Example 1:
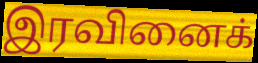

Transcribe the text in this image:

இரவினைக்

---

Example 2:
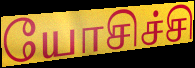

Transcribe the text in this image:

யோசிச்சி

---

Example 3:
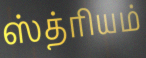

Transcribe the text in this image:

ஸ்த்ரியம்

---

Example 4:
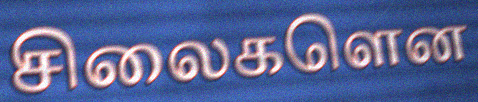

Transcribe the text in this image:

சிலைகளென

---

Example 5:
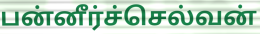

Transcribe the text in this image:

பன்னீர்ச்செல்வன்